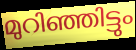
മുറിഞ്ഞിട്ടും